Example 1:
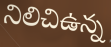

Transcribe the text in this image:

నిలిచిఉన్న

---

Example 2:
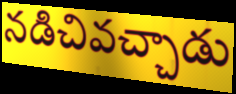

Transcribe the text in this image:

నడిచివచ్చాడు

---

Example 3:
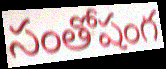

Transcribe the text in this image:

సంతోషంగ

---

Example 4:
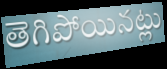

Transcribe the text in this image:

తెగిపోయినట్లు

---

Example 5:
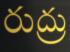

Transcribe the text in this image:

రుద్రు